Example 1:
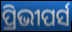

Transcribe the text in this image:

ପ୍ରିଭୀପର୍ସ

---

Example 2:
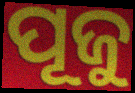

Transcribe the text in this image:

ପୂଜୁ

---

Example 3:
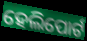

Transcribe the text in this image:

ହେଲିପୋର୍ଟ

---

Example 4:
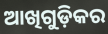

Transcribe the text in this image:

ଆଖିଗୁଡ଼ିକର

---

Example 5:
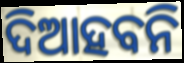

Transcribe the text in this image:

ଦିଆହବନି